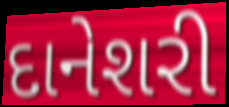
દાનેશરી